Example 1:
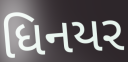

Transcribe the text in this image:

ધિનયર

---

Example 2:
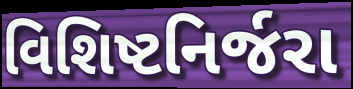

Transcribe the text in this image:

વિશિષ્ટનિર્જરા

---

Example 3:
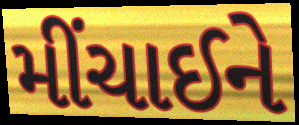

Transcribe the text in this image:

મીંચાઈને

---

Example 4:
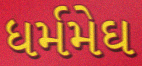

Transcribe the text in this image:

ધર્મમેઘ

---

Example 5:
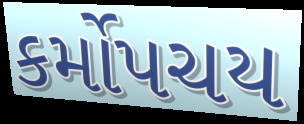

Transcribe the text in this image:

કર્મોપચય